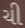
ચી